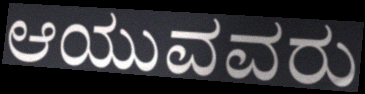
ಆಯುವವರು